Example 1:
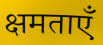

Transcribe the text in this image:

क्षमताएँ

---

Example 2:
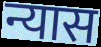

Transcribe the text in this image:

न्यास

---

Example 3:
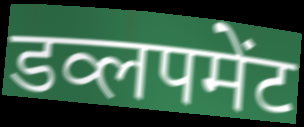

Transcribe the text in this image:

डव्लपमेंट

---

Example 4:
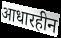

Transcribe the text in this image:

आधारहीन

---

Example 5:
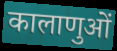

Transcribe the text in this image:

कालाणुओं